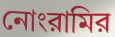
নোংরামির